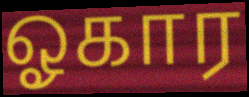
ஓகார